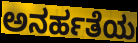
ಅನರ್ಹತೆಯ